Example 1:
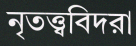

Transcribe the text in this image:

নৃতত্ত্ববিদরা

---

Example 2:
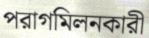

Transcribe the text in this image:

পরাগমিলনকারী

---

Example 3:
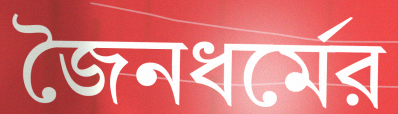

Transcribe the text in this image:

জৈনধর্মের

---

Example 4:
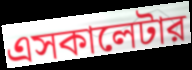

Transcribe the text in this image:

এসকালেটার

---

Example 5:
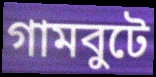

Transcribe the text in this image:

গামবুটে